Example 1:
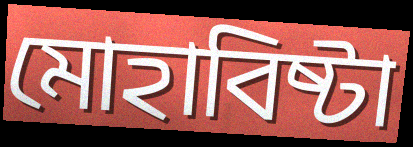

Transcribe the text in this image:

মোহাবিষ্টা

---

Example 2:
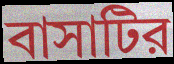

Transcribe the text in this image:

বাসাটির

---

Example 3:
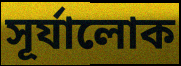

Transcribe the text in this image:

সূর্যালোক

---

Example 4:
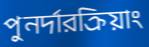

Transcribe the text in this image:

পুনর্দারক্রিয়াং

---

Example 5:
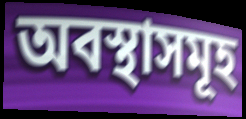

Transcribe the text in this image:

অবস্থাসমূহ